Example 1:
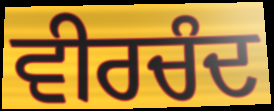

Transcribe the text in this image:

ਵੀਰਚੰਦ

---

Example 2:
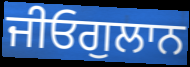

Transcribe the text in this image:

ਜੀਓਗੁਲਾਨ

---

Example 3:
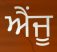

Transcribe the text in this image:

ਐਂਜੂ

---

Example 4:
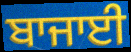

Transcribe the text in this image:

ਬਾਜਾਈ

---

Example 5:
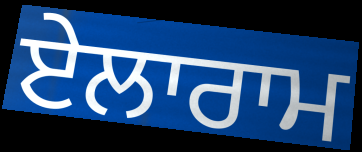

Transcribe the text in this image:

ਏਲਾਰਾਮ